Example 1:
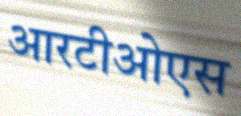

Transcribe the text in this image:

आरटीओएस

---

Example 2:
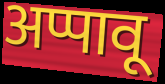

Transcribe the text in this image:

अप्पावू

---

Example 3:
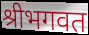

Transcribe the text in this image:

श्रीभगवत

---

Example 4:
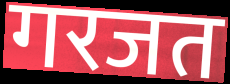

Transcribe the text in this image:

गरजत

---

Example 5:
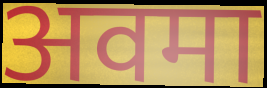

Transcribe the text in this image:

अवमा